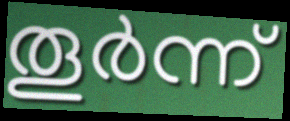
തൂർന്ന്